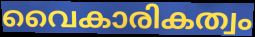
വൈകാരികത്വം